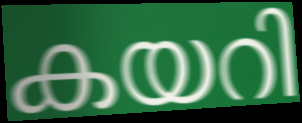
കയറി